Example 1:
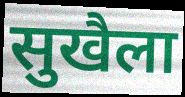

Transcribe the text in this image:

सुखैला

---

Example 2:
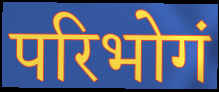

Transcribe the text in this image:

परिभोगं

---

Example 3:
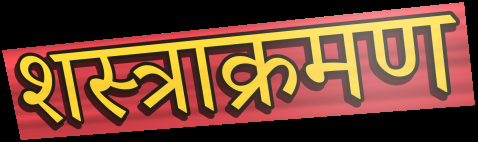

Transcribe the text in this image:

शस्त्राक्रमण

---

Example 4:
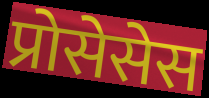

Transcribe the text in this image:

प्रोसेसेस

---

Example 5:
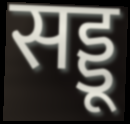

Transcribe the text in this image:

सड्डू